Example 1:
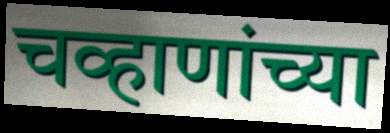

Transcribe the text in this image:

चव्हाणांच्या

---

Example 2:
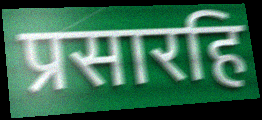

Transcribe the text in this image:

प्रसारहि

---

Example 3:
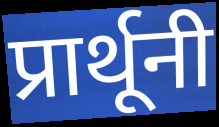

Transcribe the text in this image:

प्रार्थूनी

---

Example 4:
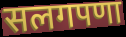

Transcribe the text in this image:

सलगपणा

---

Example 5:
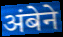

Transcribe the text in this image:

अंबेने